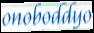
onoboddyo